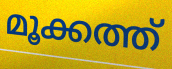
മൂക്കത്ത്